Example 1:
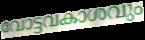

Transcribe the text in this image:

വോട്ടവകാശവും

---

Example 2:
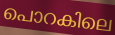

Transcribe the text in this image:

പൊറകിലെ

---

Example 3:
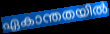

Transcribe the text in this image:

ഏകാന്തതയിൽ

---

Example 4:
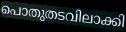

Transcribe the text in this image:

പൊതുതടവിലാക്കി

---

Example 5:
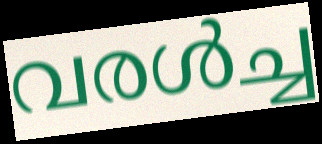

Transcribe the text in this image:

വരൾച്ച